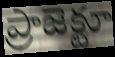
ప్రాజెక్టూ